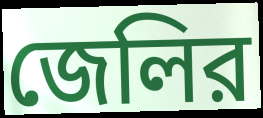
জেলির